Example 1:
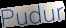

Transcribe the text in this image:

Pudur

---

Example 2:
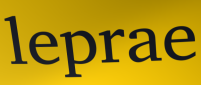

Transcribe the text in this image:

leprae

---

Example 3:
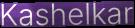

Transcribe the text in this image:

Kashelkar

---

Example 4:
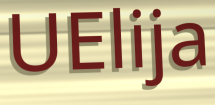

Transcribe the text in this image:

UElija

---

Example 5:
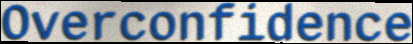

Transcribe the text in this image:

Overconfidence